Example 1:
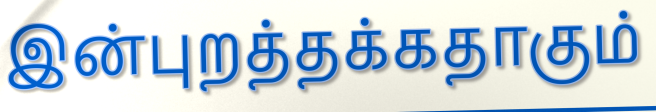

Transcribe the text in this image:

இன்புறத்தக்கதாகும்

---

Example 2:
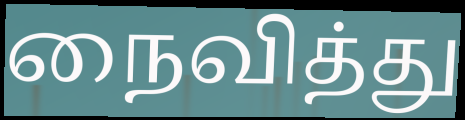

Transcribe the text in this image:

நைவித்து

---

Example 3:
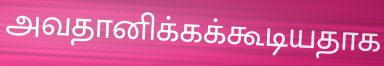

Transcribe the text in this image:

அவதானிக்கக்கூடியதாக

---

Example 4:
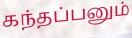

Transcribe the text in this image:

கந்தப்பனும்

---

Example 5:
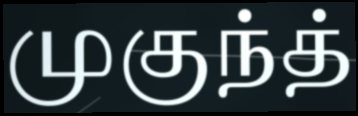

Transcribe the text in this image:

முகுந்த்